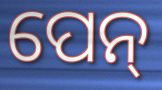
ପେନ୍